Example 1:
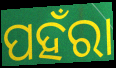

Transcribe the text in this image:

ପହଁରା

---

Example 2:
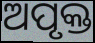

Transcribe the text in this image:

ଅପୃକ୍ତ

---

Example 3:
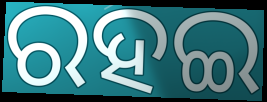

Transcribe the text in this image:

ରହଇ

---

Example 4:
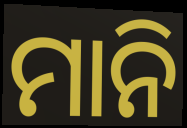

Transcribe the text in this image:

ମାନି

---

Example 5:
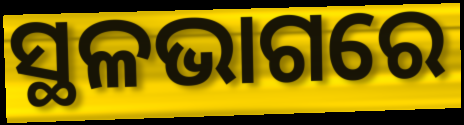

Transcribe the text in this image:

ସ୍ଥଳଭାଗରେ